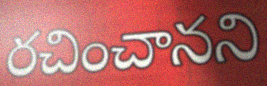
రచించానని